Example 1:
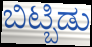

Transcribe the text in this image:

ಬಿಟ್ಬಿಡು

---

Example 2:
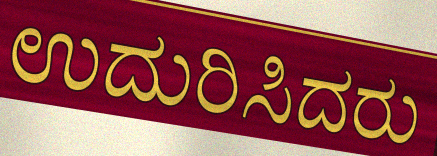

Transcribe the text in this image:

ಉದುರಿಸಿದರು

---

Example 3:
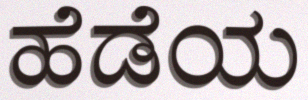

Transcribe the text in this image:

ಹೆಡೆಯ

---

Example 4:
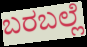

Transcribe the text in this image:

ಬರಬಲ್ಲೆ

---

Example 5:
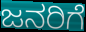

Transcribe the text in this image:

ಜನರಿಗೆ